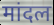
मांदल